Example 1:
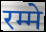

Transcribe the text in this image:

रम्मे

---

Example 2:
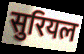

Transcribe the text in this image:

सुरियल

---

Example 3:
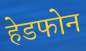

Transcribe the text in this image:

हेडफोन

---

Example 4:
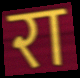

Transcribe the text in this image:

रा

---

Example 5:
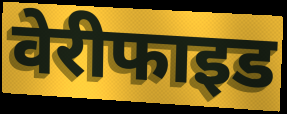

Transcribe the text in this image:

वेरीफाइड